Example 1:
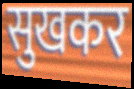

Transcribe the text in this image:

सुखकर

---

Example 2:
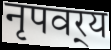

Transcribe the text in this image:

नृपवर्य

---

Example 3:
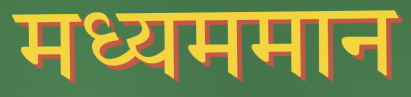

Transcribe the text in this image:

मध्यममान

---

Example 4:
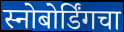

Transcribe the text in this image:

स्नोबोर्डिंगचा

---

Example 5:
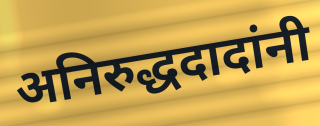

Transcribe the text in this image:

अनिरुद्धदादांनी